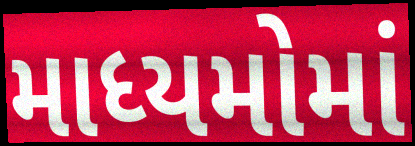
માધ્યમોમાં